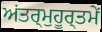
ਅਂਤਰ੍ਮੁਹੂਰ੍ਤਮੇਂ